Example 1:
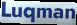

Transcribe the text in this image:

Luqman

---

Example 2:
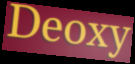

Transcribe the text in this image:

Deoxy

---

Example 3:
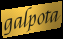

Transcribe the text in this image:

galpota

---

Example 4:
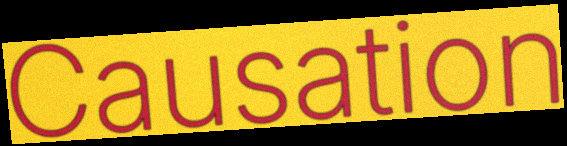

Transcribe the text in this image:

Causation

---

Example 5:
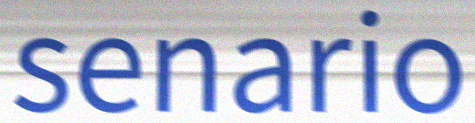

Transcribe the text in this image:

senario